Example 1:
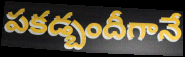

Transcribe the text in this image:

పకడ్బందీగానే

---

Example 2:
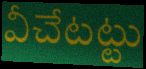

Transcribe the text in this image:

వీచేటట్టు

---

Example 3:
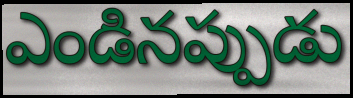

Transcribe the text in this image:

ఎండినప్పుడు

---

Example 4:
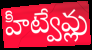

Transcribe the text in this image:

హీట్వేవ్లు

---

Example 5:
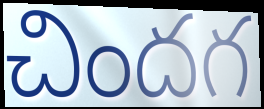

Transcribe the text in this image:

చిందగ